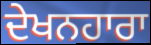
ਦੇਖਨਹਾਰਾ